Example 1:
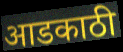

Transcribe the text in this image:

आडकाठी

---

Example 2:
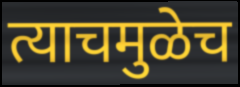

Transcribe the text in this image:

त्याचमुळेच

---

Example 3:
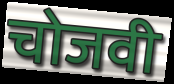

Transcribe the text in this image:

चोजवी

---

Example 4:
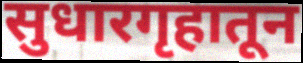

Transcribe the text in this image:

सुधारगृहातून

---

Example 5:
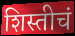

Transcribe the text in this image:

शिस्तीचं